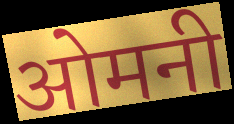
ओमनी